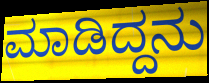
ಮಾಡಿದ್ದನು